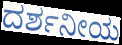
ದರ್ಶನೀಯ